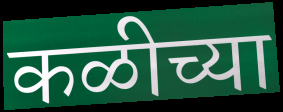
कळीच्या